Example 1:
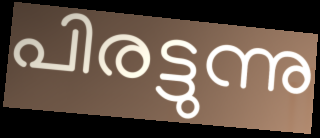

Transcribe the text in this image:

പിരട്ടുന്നു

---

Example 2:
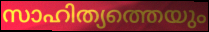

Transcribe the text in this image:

സാഹിത്യത്തെയും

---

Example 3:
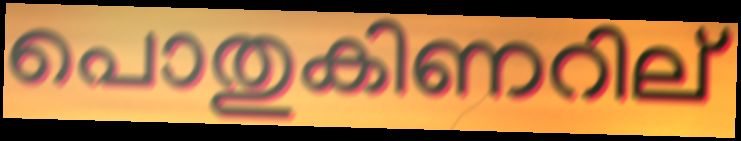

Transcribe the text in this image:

പൊതുകിണറില്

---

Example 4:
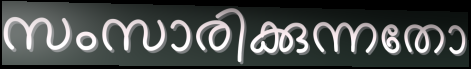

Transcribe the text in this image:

സംസാരിക്കുന്നതോ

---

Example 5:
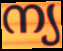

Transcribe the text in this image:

ന്യ